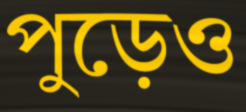
পুড়েও